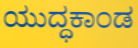
ಯುದ್ಧಕಾಂಡ